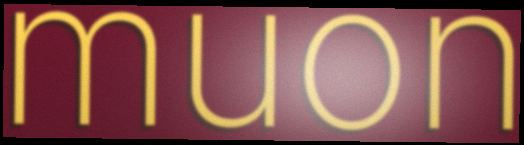
muon